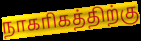
நாகரிகத்திற்கு